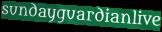
sundayguardianlive